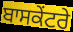
ਬਾਸਕੇਂਟਰੇ